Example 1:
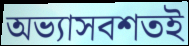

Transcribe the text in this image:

অভ্যাসবশতই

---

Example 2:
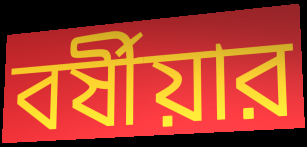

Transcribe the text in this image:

বর্ষীয়ার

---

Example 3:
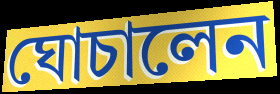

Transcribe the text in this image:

ঘোচালেন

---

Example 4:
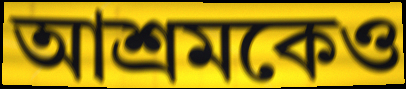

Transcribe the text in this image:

আশ্রমকেও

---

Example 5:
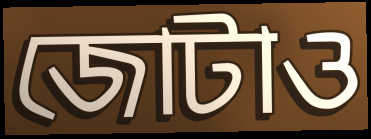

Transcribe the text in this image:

জোটাও